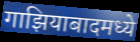
गाझियाबादमध्ये